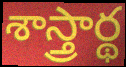
శాస్త్రార్థ